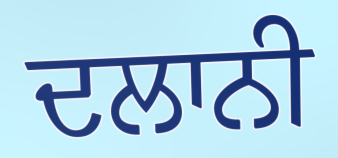
ਦਲਾਨੀ